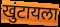
खुंटायला